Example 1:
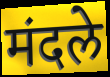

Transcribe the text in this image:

मंदले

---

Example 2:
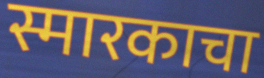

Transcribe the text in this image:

स्मारकाचा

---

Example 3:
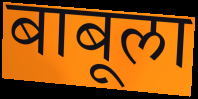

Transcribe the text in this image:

बाबूला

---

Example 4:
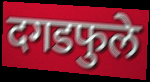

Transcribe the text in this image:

दगडफुले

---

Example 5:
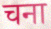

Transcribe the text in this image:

चना